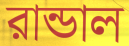
রান্ডাল